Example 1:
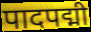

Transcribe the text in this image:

पादपद्मी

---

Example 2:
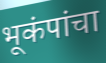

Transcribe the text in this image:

भूकंपांचा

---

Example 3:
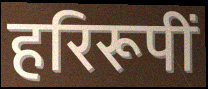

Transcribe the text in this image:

हरिरूपीं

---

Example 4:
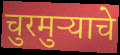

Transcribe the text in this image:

चुरमुऱ्याचे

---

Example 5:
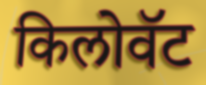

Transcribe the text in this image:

किलोवॅट